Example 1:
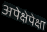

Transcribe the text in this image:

अपेक्षेपेक्षा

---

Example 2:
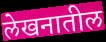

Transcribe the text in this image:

लेखनातील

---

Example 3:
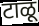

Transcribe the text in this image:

टाळू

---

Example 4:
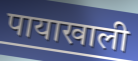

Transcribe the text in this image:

पायाखाली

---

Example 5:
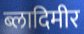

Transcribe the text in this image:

ब्लादिमीर